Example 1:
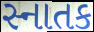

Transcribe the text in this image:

સ્નાતક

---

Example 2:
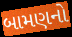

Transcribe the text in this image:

બામણનો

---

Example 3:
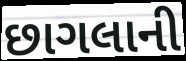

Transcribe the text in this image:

છાગલાની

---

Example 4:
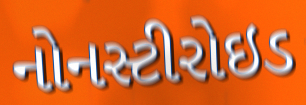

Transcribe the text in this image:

નોનસ્ટીરોઇડ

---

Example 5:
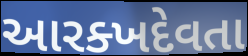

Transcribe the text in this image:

આરક્ખદેવતા